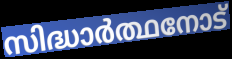
സിദ്ധാർത്ഥനോട്